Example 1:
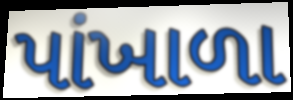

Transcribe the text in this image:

પાંખાળા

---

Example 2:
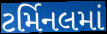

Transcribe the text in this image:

ટર્મિનલમાં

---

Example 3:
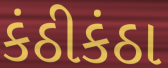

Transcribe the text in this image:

કંઠીકંઠા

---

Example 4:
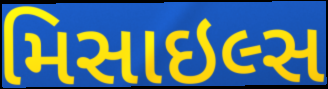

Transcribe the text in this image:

મિસાઇલ્સ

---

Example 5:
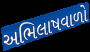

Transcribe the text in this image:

અભિલાષવાળો